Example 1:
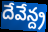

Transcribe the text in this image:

దేవేన్ద్ర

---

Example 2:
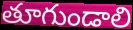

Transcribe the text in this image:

తూగుండాలి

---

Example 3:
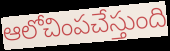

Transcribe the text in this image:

ఆలోచింపచేస్తుంది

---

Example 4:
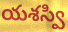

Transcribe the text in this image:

యశస్వి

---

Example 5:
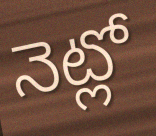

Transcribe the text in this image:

నెట్లో